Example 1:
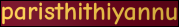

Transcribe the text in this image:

paristhithiyannu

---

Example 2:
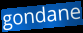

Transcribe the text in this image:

gondane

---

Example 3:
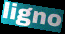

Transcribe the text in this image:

ligno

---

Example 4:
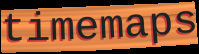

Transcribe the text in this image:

timemaps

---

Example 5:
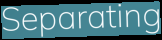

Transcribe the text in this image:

Separating